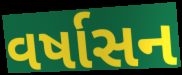
વર્ષાસન